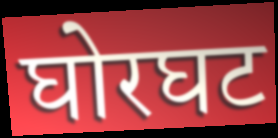
घोरघट